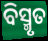
ବିସ୍ମୃତ